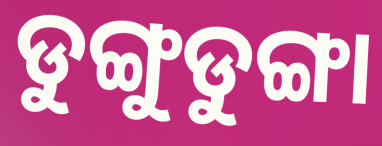
ଡୁଙ୍ଗୁଡୁଙ୍ଗା